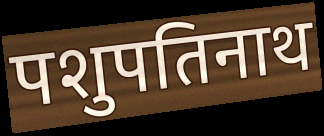
पशुपतिनाथ